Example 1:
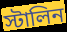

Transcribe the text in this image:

স্টালিন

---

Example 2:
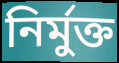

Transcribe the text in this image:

নির্মুক্ত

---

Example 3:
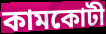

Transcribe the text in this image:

কামকোটী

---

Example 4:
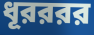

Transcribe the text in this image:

ধূরররর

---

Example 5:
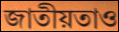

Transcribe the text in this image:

জাতীয়তাও